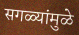
सगळ्यांमुळे